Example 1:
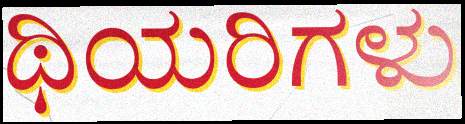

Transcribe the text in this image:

ಥಿಯರಿಗಳು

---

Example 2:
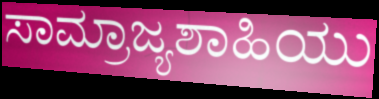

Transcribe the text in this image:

ಸಾಮ್ರಾಜ್ಯಶಾಹಿಯು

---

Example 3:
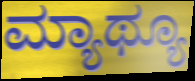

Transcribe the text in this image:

ಮ್ಯಾಥ್ಯೂ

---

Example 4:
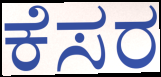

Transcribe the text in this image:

ಕೆಸರ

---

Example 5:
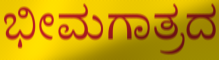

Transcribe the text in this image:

ಭೀಮಗಾತ್ರದ